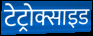
टेट्रोक्साइड